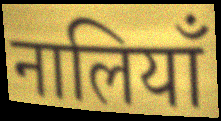
नालियाँ